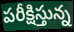
పరీక్షిస్తున్న